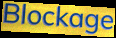
Blockage